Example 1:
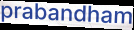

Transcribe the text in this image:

prabandham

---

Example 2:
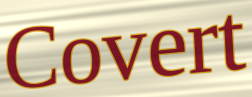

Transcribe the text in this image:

Covert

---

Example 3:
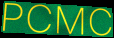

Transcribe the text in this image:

PCMC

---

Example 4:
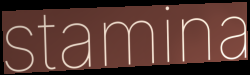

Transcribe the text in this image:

stamina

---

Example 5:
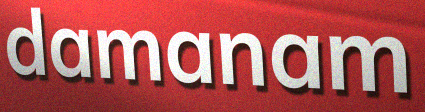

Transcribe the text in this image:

damanam